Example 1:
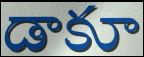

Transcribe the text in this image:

డాకూ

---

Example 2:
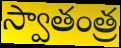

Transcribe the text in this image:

స్వాతంత్ర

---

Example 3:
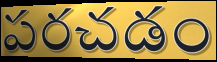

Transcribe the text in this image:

పరచడం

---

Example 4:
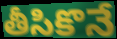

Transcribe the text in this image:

తీసికొనే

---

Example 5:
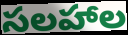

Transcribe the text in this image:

సలహాల